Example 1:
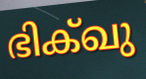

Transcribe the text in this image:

ഭിക്ഖു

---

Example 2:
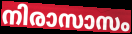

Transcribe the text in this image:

നിരാസാസം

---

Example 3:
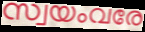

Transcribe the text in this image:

സ്വയംവരേ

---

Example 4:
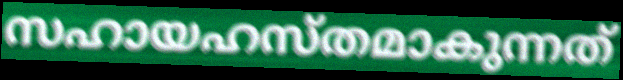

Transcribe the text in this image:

സഹായഹസ്തമാകുന്നത്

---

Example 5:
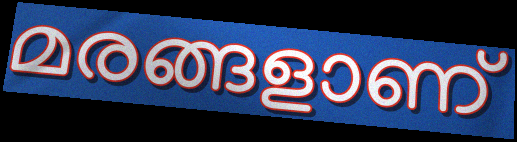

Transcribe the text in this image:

മരങ്ങളാണ്